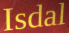
Isdal